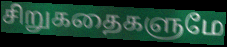
சிறுகதைகளுமே